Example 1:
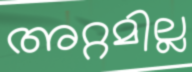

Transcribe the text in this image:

അറ്റമില്ല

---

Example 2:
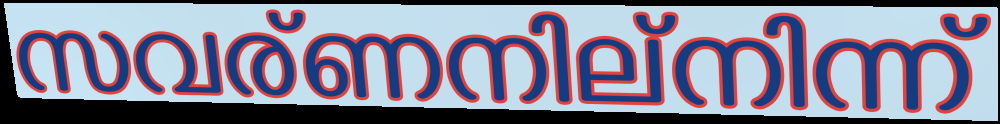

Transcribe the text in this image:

സവര്ണനില്നിന്ന്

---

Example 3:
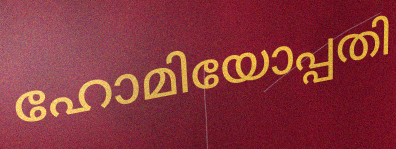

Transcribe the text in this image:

ഹോമിയോപ്പതി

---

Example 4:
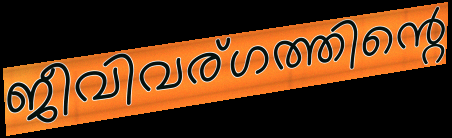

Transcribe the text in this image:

ജീവിവര്ഗത്തിന്റെ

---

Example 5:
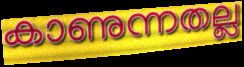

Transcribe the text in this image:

കാണുന്നതല്ല